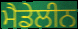
ਮੈਡੇਲੀਨ